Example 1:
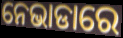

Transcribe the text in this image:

ନେଭାଡାରେ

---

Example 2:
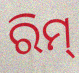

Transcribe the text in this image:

ରିମ୍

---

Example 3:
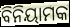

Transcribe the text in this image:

ବିନିୟାମକ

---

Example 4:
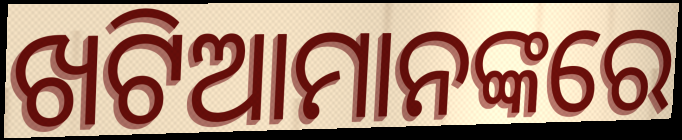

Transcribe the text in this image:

ଖଟିଆମାନଙ୍କରେ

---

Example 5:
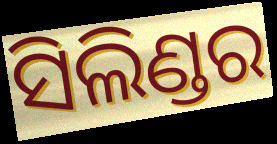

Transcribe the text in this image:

ସିଲିଣ୍ଡର